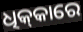
ଧିକ୍‌କାରେ